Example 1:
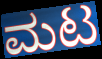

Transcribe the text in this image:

ಮಟ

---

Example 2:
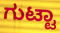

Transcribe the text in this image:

ಗುಟ್ಟಾ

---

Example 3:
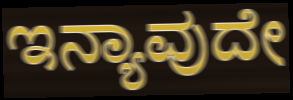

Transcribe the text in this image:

ಇನ್ಯಾವುದೇ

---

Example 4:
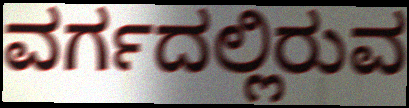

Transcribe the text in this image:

ವರ್ಗದಲ್ಲಿರುವ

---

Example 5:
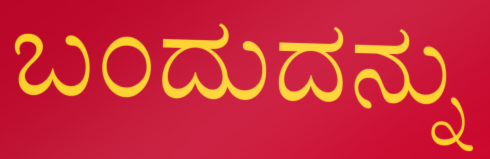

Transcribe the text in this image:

ಬಂದುದನ್ನು